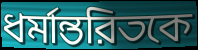
ধর্মান্তরিতকে